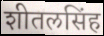
शीतलसिंह